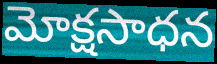
మోక్షసాధన